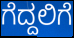
ಗೆದ್ದಲಿಗೆ